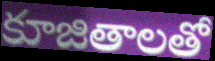
కూజితాలతో